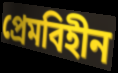
প্রেমবিহীন